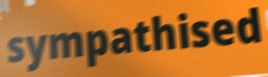
sympathised